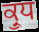
ਕ੍ਰੁਧ